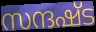
സന്ദഷ്ട